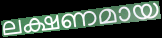
ലക്ഷണമായ